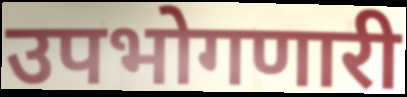
उपभोगणारी